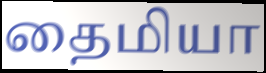
தைமியா